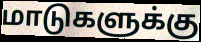
மாடுகளுக்கு